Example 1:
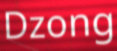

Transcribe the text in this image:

Dzong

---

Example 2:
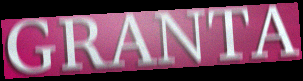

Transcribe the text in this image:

GRANTA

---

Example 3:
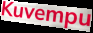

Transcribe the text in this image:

Kuvempu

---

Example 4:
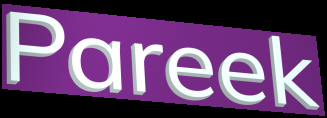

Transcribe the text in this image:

Pareek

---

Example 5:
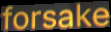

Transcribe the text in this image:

forsake